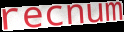
recnum